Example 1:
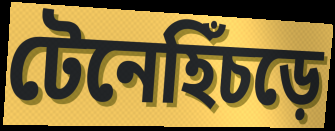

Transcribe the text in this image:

টেনেহিঁচড়ে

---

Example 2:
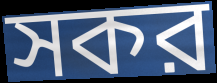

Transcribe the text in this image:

সকর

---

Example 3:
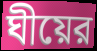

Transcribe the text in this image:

ঘীয়ের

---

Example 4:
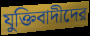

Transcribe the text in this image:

যুক্তিবাদীদের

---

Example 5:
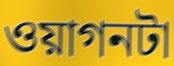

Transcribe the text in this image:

ওয়াগনটা